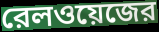
রেলওয়েজের